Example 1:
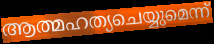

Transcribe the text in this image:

ആത്മഹത്യചെയ്യുമെന്ന്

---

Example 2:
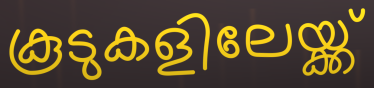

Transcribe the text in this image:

കൂടുകളിലേയ്ക്ക്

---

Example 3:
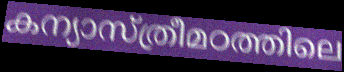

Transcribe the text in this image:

കന്യാസ്ത്രീമഠത്തിലെ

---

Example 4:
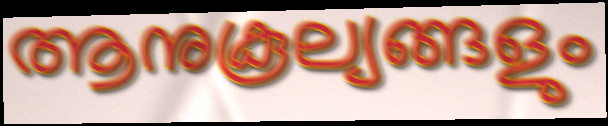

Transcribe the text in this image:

ആനുകൂല്യങ്ങളും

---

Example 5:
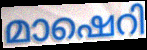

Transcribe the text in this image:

മാഷെറി